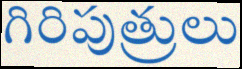
గిరిపుత్రులు